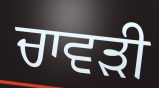
ਚਾਵੜੀ